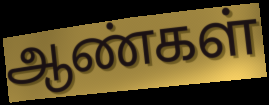
ஆண்கள்